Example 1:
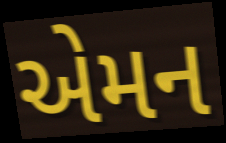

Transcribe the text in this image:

એમન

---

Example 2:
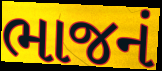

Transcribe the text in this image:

ભાજનં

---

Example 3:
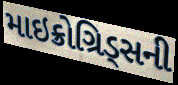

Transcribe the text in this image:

માઇક્રોગ્રિડ્સની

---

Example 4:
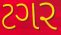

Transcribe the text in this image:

ટગર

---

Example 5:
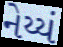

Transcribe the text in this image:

નેય્યં